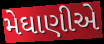
મેઘાણીએ